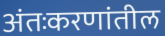
अंतःकरणांतील